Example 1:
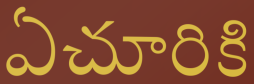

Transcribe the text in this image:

ఏచూరికి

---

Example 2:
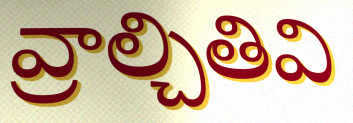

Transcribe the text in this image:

వ్రాల్చితివి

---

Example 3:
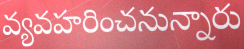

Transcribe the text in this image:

వ్యవహరించనున్నారు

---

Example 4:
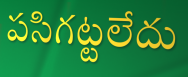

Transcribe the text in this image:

పసిగట్టలేదు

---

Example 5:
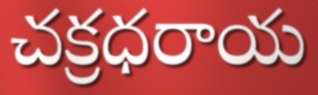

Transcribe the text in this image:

చక్రధరాయ